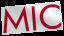
MIC